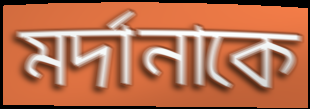
মর্দানাকে